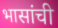
भासांची